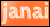
janai